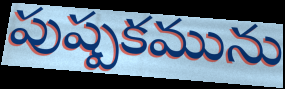
పుష్పకమును